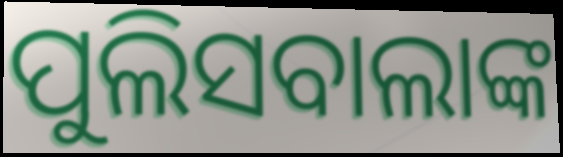
ପୁଲିସବାଲାଙ୍କ